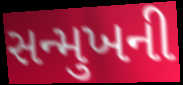
સન્મુખની